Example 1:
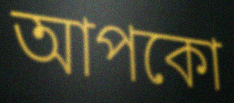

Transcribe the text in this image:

আপকো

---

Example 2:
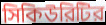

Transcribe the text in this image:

সিকিউরিটির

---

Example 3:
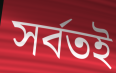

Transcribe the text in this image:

সর্বতই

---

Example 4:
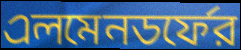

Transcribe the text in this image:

এলমেনডর্ফের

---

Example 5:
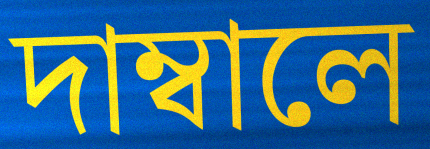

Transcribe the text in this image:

দাম্বালে